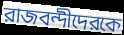
রাজবন্দীদেরকে